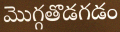
మొగ్గతొడగడం